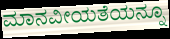
ಮಾನವೀಯತೆಯನ್ನೂ